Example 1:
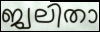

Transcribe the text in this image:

ജ്വലിതാ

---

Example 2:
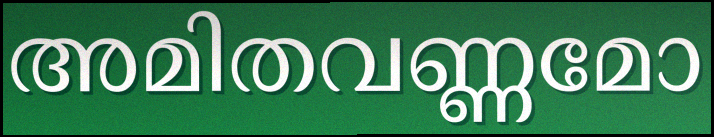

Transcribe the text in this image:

അമിതവണ്ണമോ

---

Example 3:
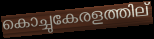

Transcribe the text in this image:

കൊച്ചുകേരളത്തില്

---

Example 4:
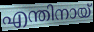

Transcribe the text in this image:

എന്തിനായ്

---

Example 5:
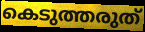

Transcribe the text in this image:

കെടുത്തരുത്